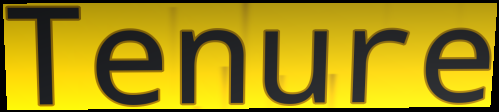
Tenure